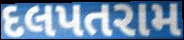
દલપતરામ